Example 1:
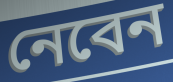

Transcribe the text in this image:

নেবেন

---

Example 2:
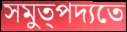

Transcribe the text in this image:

সমুত্পদ্যতে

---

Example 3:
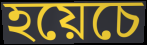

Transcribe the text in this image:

হয়েচে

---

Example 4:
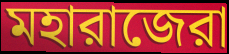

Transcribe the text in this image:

মহারাজেরা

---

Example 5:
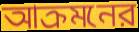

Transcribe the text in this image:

আক্রমনের